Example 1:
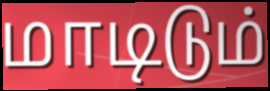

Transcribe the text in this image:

மாடிடும்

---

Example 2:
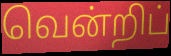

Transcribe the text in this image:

வென்றிப்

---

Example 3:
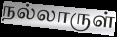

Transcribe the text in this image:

நல்லாருள்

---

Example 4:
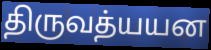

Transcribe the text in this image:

திருவத்யயன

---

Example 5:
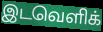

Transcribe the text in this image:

இடவெளிக்